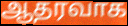
ஆதரவாக